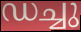
ഡച്ചു